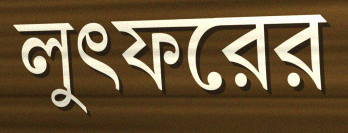
লুৎফরের